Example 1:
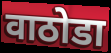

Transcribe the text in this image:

वाठोडा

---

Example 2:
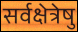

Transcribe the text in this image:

सर्वक्षेत्रेषु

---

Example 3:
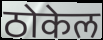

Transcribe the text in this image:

ठोकेल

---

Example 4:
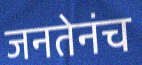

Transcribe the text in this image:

जनतेनंच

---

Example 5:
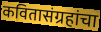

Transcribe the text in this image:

कवितासंग्रहांचा